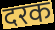
दरक